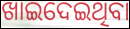
ଖାଇଦେଇଥିବା